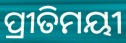
ପ୍ରୀତିମୟୀ